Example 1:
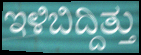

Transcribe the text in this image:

ಇಳಿಬಿದ್ದಿತ್ತು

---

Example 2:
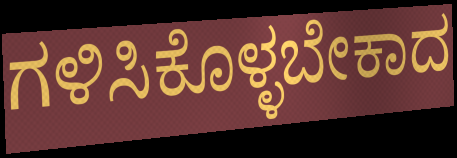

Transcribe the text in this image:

ಗಳಿಸಿಕೊಳ್ಳಬೇಕಾದ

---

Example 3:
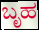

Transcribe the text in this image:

ಬೃಹ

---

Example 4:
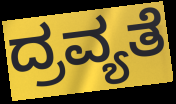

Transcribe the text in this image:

ದ್ರವ್ಯತೆ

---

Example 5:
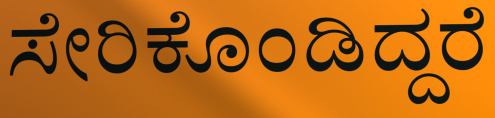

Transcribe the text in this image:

ಸೇರಿಕೊಂಡಿದ್ದರೆ